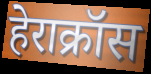
हेराक्रॉस